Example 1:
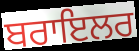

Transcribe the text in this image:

ਬਰਾਇਲਰ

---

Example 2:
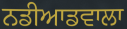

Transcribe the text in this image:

ਨਡੀਆਡਵਾਲਾ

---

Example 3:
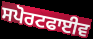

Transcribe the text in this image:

ਸਪੋਰਟਫਾਈਵ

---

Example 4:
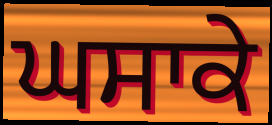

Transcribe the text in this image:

ਘਸਾਕੇ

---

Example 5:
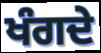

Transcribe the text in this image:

ਖੰਗਦੇ